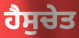
ਹੈਸੁਚੇਤ